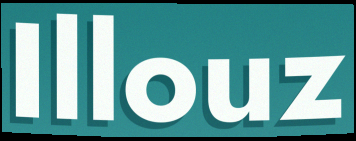
Illouz